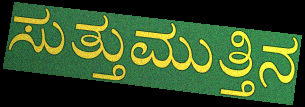
ಸುತ್ತುಮುತ್ತಿನ